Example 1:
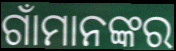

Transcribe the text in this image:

ଗାଁମାନଙ୍କର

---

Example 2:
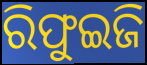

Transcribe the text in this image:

ରିଫୁଇଜି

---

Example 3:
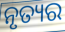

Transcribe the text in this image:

ନୃତ୍ୟର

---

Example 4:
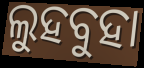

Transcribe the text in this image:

ଲୁହବୁହା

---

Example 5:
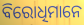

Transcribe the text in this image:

ବିରୋଧିମାନେ